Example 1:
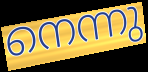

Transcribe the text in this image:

നെന്നു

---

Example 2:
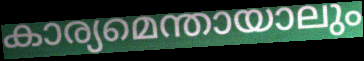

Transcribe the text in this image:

കാര്യമെന്തായാലും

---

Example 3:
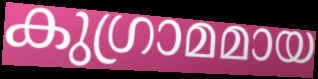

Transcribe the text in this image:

കുഗ്രാമമായ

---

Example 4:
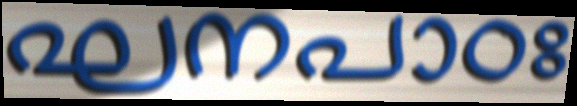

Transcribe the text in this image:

ഘനപാഠഃ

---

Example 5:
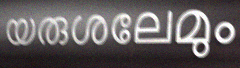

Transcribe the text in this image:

യരുശലേമും